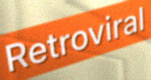
Retroviral